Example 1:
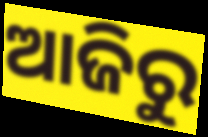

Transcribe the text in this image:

ଆଜିରୁ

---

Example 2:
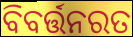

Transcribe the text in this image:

ବିବର୍ତ୍ତନରତ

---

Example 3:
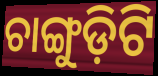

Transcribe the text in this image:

ଚାଙ୍ଗୁଡ଼ିଟି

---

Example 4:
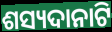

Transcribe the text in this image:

ଶସ୍ୟଦାନାଟି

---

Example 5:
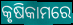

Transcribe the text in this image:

କୃଷିକାମରେ